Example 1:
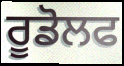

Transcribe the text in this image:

ਰੂਡੋਲਫ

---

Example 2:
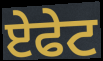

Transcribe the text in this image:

ਏਫੇਟ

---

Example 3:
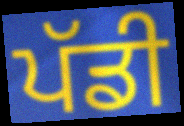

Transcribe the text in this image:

ਪੱਡੀ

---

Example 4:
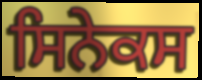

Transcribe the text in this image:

ਸਿਨੇਕਸ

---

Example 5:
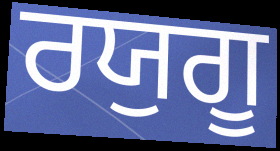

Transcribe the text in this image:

ਰਯੁਗੂ